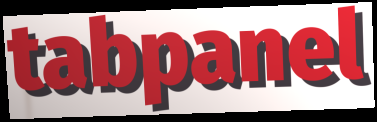
tabpanel